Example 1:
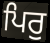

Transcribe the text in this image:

ਪਿਰੁ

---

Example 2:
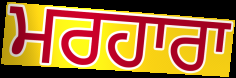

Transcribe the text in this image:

ਮਰਹਾਰਾ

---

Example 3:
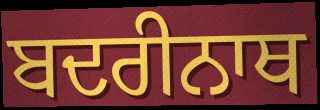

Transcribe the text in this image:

ਬਦਰੀਨਾਥ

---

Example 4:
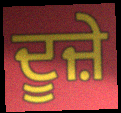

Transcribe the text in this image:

ਦੂਜ਼ੇ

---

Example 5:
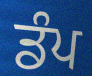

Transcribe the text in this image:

ਡੰਪ